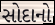
સોદાનો